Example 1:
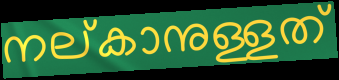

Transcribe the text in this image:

നല്കാനുള്ളത്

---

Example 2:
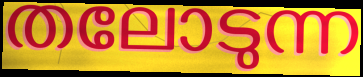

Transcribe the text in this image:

തലോടുന്ന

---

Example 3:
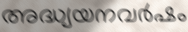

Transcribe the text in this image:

അദ്ധ്യയനവർഷം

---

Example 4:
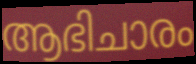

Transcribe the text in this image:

ആഭിചാരം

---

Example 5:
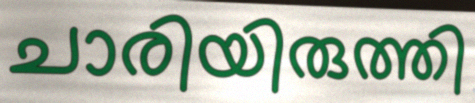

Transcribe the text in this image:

ചാരിയിരുത്തി